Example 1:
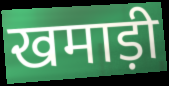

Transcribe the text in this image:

खमाड़ी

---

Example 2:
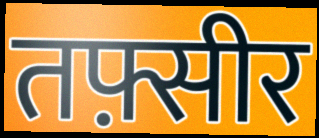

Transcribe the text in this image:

तफ़्सीर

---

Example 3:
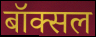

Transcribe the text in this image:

बॉक्सल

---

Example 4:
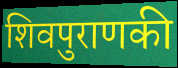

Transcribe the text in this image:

शिवपुराणकी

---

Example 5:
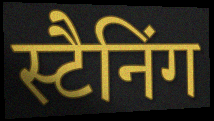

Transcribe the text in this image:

स्टैनिंग